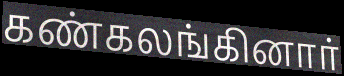
கண்கலங்கினார்